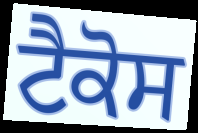
ਟੈਕੋਸ